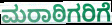
ಮರಾಠಿಗರಿಗೆ